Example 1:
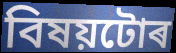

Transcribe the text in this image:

বিষয়টোৰ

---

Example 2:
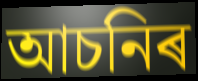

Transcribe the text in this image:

আচনিৰ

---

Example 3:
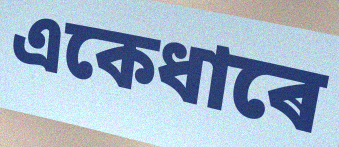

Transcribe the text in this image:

একেধাৰে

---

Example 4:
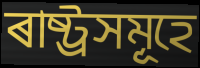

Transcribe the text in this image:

ৰাষ্ট্ৰসমূহে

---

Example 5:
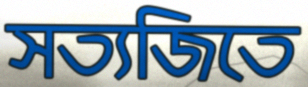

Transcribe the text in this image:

সত্যজিতে